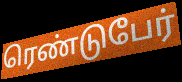
ரெண்டுபேர்